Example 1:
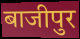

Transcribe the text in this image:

बाजीपुर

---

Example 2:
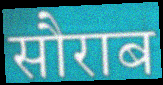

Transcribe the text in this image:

सौराब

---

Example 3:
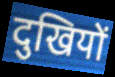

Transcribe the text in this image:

दुखियों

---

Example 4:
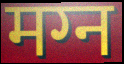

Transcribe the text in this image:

मग्‍न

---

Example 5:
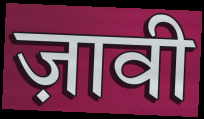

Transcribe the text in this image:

ज़ावी